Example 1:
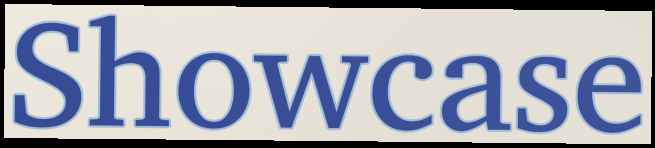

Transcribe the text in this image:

Showcase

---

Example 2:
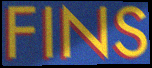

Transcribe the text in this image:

FINS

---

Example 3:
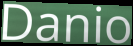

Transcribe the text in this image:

Danio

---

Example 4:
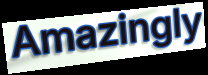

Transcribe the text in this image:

Amazingly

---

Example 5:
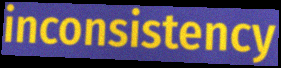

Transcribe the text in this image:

inconsistency